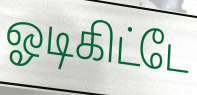
ஓடிகிட்டே